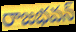
రాజభవన్